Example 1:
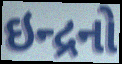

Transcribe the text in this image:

ઇન્દ્રનો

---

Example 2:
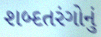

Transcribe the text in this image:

શબ્દતરંગોનું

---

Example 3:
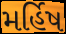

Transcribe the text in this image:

મર્હિષ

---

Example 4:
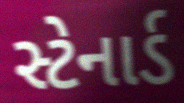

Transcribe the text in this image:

સ્ટેનાર્ડ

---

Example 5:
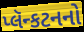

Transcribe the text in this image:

પ્લૅન્કટનનો